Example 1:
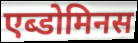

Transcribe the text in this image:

एब्डोमिनस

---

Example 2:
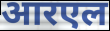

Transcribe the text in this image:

आरएल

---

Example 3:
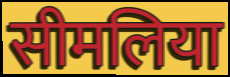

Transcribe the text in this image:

सीमलिया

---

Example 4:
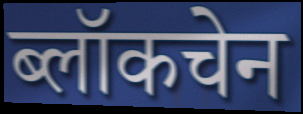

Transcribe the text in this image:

ब्लॉकचेन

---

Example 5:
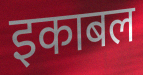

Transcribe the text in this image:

इकाबल